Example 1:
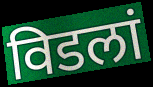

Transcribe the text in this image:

विडलां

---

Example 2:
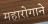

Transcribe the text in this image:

महारोगाने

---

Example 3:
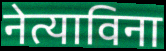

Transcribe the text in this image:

नेत्याविना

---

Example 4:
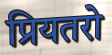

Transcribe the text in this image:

प्रियतरो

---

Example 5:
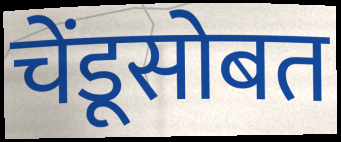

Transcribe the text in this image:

चेंडूसोबत